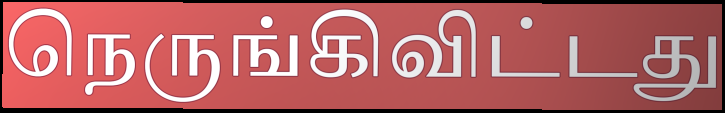
நெருங்கிவிட்டது